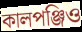
কালপঞ্জিও